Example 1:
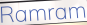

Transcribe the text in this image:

Ramram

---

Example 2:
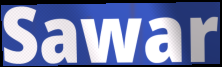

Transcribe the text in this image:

Sawar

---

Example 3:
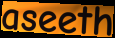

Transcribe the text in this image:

aseeth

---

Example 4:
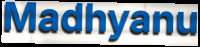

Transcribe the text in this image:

Madhyanu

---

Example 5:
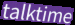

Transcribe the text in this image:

talktime